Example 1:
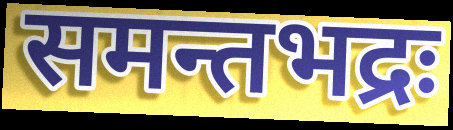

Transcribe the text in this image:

समन्तभद्रः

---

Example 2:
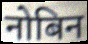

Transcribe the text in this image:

नोबिन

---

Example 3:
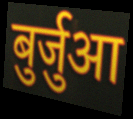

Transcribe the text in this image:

बुर्जुआ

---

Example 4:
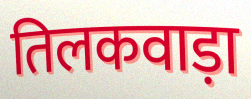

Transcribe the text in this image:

तिलकवाड़ा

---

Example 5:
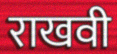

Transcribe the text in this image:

राखवी